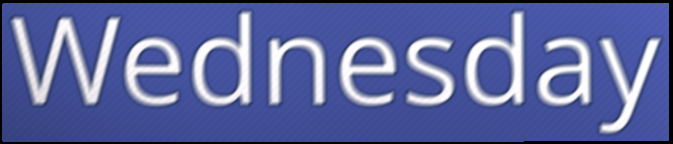
Wednesday